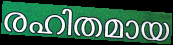
രഹിതമായ